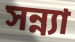
সন্ন্যা